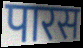
पारस